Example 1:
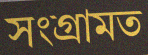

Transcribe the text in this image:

সংগ্ৰামত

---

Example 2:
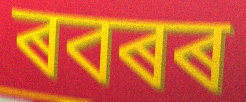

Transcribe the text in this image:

ৰবৰৰ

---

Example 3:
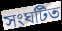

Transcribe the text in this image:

সংঘটিত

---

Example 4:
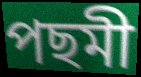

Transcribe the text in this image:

পছমী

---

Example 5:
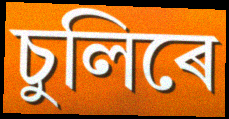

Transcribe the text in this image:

চুলিৰে